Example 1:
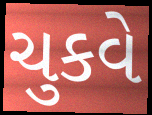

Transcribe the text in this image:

ચુકવે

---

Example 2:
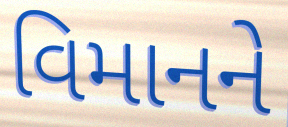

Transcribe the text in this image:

વિમાનને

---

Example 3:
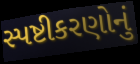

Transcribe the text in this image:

સ્પષ્ટીકરણોનું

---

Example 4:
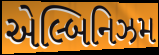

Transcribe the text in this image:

એલ્બિનિઝમ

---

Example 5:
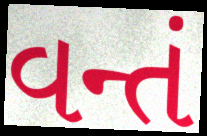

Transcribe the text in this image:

વન્તં